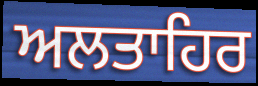
ਅਲਤਾਹਿਰ